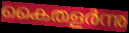
കൈതളർന്നു